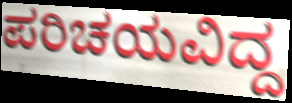
ಪರಿಚಯವಿದ್ದ